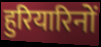
हुरियारिनों